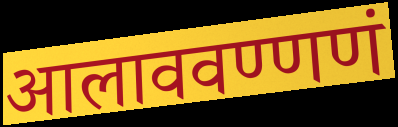
आलाववण्णणं